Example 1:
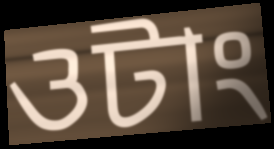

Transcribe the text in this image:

ওটাং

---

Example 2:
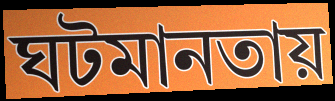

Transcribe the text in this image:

ঘটমানতায়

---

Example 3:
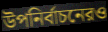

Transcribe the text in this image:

উপনির্বাচনেরও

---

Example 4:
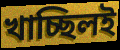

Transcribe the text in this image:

খাচ্ছিলই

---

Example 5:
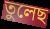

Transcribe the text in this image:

তুলেছ